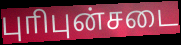
புரிபுன்சடை